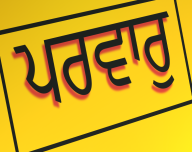
ਪਰਵਾਰੁ